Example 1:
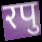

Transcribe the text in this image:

रपु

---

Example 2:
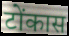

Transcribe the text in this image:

टोंकास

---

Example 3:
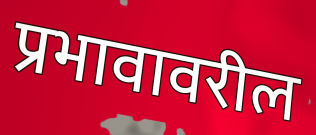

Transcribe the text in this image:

प्रभावावरील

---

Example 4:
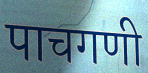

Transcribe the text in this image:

पाचगणी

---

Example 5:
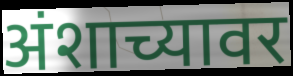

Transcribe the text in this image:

अंशाच्यावर